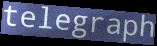
telegraph